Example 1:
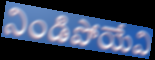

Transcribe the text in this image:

నిండిపోయేవి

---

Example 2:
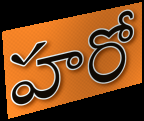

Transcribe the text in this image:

హరో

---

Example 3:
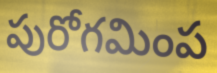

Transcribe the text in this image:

పురోగమింప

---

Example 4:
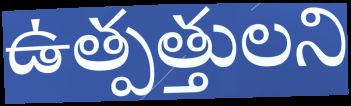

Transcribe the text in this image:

ఉత్పత్తులని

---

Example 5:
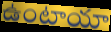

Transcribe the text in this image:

ఉంటాయా